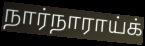
நார்நாராய்க்